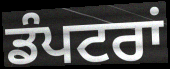
ਡੰਪਟਰਾਂ